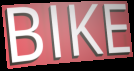
BIKE